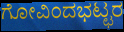
ಗೋವಿಂದಭಟ್ಟರ